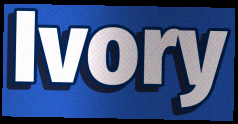
Ivory